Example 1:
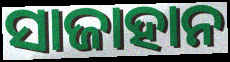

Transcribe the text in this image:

ସାଜାହାନ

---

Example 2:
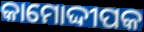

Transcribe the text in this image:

କାମୋଦ୍ଦୀପକ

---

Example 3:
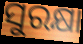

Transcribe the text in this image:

ସୁରକ୍ଷା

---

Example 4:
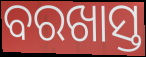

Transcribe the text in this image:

ବରଖାସ୍ତ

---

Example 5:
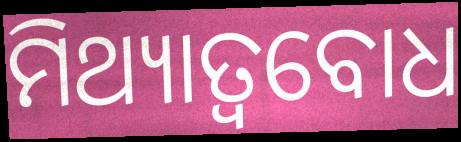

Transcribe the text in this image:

ମିଥ୍ୟାତ୍ୱବୋଧ